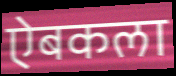
ऐबकला